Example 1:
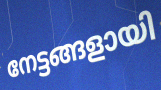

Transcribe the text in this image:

നേട്ടങ്ങളായി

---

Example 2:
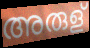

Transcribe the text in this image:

അരുള്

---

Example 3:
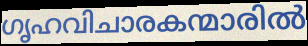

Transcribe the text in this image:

ഗൃഹവിചാരകന്മാരിൽ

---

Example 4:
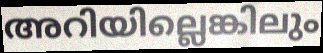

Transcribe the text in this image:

അറിയില്ലെങ്കിലും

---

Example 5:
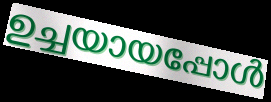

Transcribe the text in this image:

ഉച്ചയായപ്പോൾ